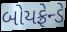
બોયફ્રેન્ડે